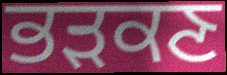
ਭੜਕਣ